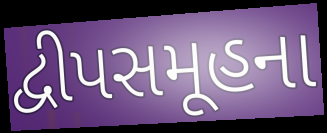
દ્વીપસમૂહના